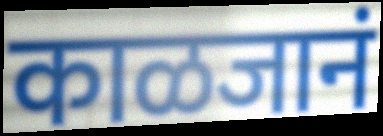
काळजानं